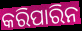
କରିପାରିନ